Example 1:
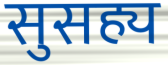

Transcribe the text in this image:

सुसह्य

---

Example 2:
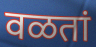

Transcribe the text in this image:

वळतां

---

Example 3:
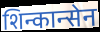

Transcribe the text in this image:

शिन्कान्सेन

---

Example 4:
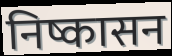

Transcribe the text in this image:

निष्कासन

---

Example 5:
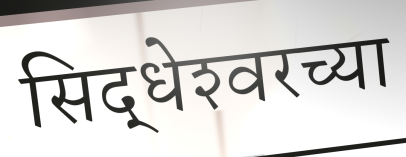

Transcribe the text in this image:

सिद्धेश्वरच्या